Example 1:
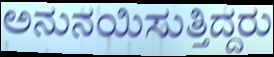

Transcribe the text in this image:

ಅನುನಯಿಸುತ್ತಿದ್ದರು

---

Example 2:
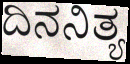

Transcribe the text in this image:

ದಿನನಿತ್ಯ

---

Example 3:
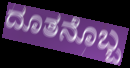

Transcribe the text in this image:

ದೂತನೊಬ್ಬ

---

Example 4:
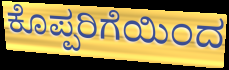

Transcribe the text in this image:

ಕೊಪ್ಪರಿಗೆಯಿಂದ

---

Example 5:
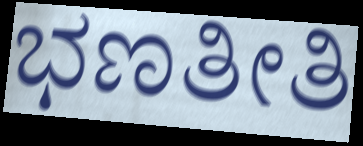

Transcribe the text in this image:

ಭಣತೀತಿ